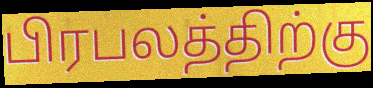
பிரபலத்திற்கு